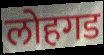
लोहगड